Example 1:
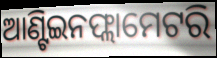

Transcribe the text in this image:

ଆଣ୍ଟିଇନଫ୍ଲାମେଟରି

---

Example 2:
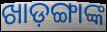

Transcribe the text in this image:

ଖାଡ଼ଙ୍ଗାଙ୍କ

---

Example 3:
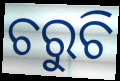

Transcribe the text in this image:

ଚରୁଚି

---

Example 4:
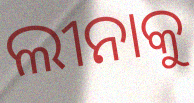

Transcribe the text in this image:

ଲୀନାକୁ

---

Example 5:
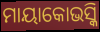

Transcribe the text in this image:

ମାୟାକୋଭସ୍କି